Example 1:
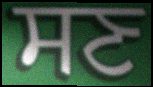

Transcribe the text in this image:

ਸਣ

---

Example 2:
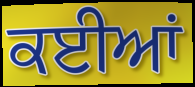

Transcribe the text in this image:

ਕਈਆਂ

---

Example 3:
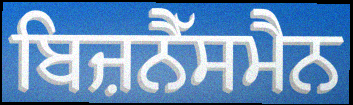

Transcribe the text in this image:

ਬਿਜ਼ਨੈੱਸਮੈਨ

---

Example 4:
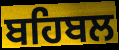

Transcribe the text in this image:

ਬਹਿਬਲ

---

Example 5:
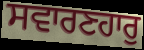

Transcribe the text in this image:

ਸਵਾਰਣਹਾਰੁ